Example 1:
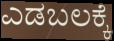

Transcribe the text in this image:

ಎಡಬಲಕ್ಕೆ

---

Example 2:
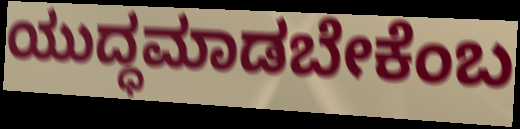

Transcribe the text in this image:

ಯುದ್ಧಮಾಡಬೇಕೆಂಬ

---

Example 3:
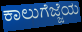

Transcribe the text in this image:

ಕಾಲುಗೆಜ್ಜೆಯ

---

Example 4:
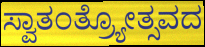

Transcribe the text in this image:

ಸ್ವಾತಂತ್ರ್ಯೋತ್ಸವದ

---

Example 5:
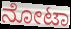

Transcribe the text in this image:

ನೋಟಾ